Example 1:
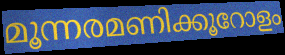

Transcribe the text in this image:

മൂന്നരമണിക്കൂറോളം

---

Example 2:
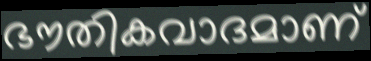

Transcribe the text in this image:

ഭൗതികവാദമാണ്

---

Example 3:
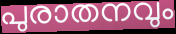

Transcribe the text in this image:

പുരാതനവും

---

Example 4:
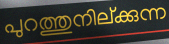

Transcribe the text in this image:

പുറത്തുനില്ക്കുന്ന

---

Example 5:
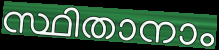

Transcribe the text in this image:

സ്ഥിതാനാം